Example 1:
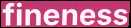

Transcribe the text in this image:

fineness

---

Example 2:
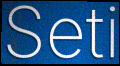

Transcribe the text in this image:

Seti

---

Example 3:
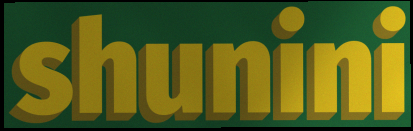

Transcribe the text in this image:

shunini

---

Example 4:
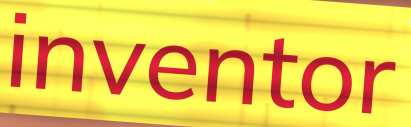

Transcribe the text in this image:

inventor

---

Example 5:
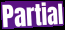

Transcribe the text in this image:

Partial